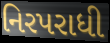
નિરપરાધી